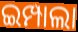
ଇମ୍ପାଲା